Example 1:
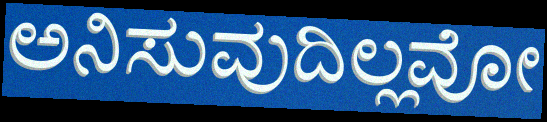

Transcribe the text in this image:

ಅನಿಸುವುದಿಲ್ಲವೋ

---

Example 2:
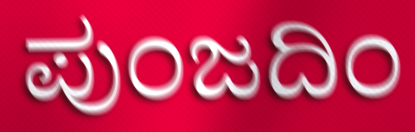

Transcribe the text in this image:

ಪುಂಜದಿಂ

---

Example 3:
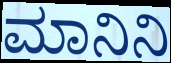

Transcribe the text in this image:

ಮಾನಿನಿ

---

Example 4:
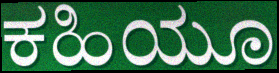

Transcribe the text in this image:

ಕಹಿಯೂ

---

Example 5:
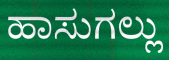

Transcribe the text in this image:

ಹಾಸುಗಲ್ಲು